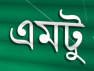
এমটু